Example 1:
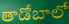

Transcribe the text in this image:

తాడోబాలో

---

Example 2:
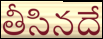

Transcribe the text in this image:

తీసినదే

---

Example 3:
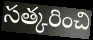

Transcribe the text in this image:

సత్కరించి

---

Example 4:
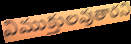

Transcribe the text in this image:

విముక్తులవుతారని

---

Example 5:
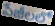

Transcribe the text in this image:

పేజీలలో